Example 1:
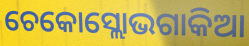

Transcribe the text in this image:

ଚେକୋସ୍ଲୋଭଗାକିଆ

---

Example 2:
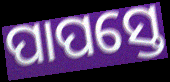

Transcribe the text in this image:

ପାପସ୍ତେ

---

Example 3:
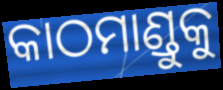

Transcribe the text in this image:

କାଠମାଣ୍ଡୁକୁ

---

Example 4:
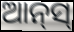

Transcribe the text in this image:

ଆନ୍‌ସ୍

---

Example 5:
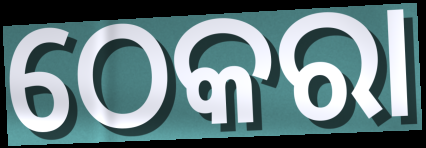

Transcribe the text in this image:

ଠେକରା